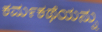
ಕರ್ಮಕಥೆಯನ್ನು